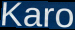
Karo